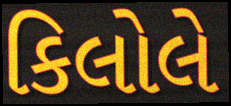
કિલોલે